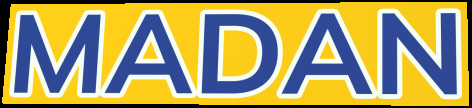
MADAN